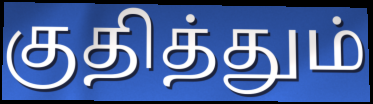
குதித்தும்